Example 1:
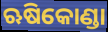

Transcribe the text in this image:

ଋଷିକୋଣ୍ଡା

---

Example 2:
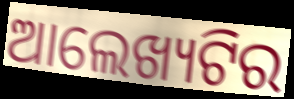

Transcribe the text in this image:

ଆଲେଖ୍ୟଟିର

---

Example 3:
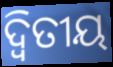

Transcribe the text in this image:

ଦ୍ୱିତୀୟ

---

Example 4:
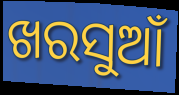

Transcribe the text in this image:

ଖରସୁଆଁ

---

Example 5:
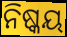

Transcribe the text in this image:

ନିଷ୍କୟ